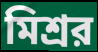
মিশ্রর